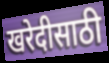
खरेदीसाठी